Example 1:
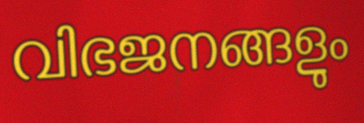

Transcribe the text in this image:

വിഭജനങ്ങളും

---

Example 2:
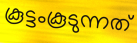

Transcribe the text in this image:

കൂട്ടംകൂടുന്നത്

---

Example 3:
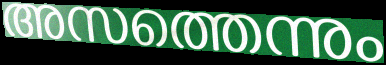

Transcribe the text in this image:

അസത്തെന്നും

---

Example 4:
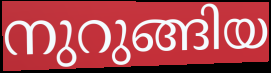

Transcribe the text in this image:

നുറുങ്ങിയ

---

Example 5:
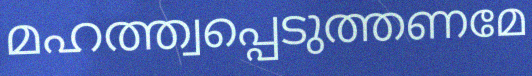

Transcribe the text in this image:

മഹത്ത്വപ്പെടുത്തണമേ